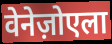
वेनेज़ोएला